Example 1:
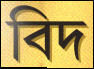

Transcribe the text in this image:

বিদ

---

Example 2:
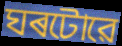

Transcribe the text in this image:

ঘৰটোৱে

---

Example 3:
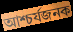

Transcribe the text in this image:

আশ্চৰ্যজনক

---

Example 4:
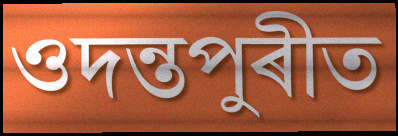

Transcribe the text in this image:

ওদন্তপুৰীত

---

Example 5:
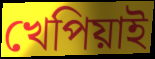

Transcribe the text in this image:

খেপিয়াই